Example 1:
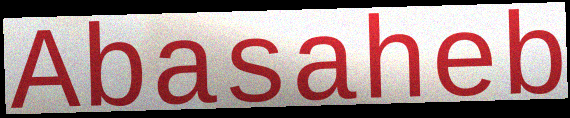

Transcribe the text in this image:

Abasaheb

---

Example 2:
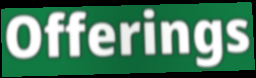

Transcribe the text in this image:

Offerings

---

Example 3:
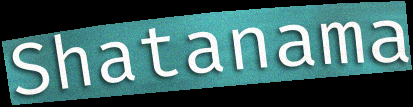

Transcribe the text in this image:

Shatanama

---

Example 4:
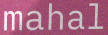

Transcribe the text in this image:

mahal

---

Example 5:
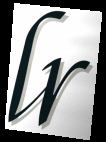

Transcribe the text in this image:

lr